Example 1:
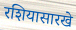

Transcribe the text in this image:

रशियासारखे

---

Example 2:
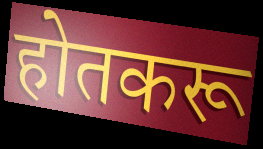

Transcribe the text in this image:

होतकरू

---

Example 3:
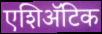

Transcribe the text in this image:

एशिॲटिक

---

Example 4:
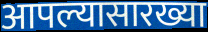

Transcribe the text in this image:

आपल्यासारख्या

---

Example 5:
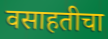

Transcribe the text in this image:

वसाहतीचा